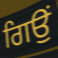
ਗਿਉਂ